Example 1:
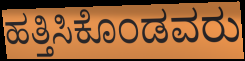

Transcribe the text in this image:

ಹತ್ತಿಸಿಕೊಂಡವರು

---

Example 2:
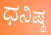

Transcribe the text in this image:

ಧನಿಷ್ಠ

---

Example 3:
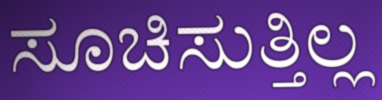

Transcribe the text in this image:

ಸೂಚಿಸುತ್ತಿಲ್ಲ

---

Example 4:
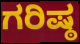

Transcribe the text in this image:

ಗರಿಷ್ಠ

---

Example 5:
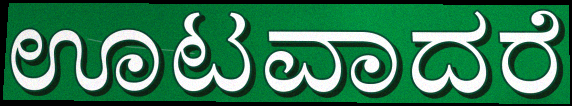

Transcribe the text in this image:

ಊಟವಾದರೆ